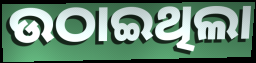
ଉଠାଇଥିଲା